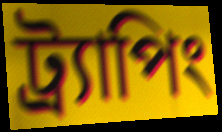
ট্র্যাপিং